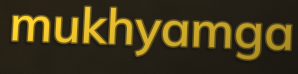
mukhyamga